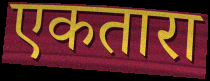
एकतारा